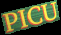
PICU